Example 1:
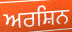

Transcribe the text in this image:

ਅਰਸ਼ਿਨ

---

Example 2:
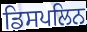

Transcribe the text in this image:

ਡਿਸਪਲਿਨ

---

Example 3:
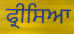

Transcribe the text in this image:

ਫ੍ਰੀਸਿਆ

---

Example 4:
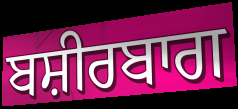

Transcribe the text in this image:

ਬਸ਼ੀਰਬਾਗ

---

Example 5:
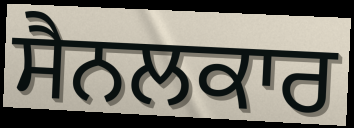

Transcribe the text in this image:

ਸੈਨਲਕਾਰ